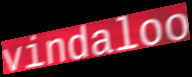
vindaloo